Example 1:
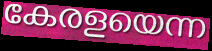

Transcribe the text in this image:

കേരളയെന്ന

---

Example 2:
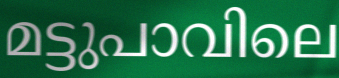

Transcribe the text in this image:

മട്ടുപാവിലെ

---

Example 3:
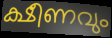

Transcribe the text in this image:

ക്ഷീണവും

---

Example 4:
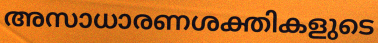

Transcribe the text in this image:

അസാധാരണശക്തികളുടെ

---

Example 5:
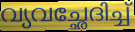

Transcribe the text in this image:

വ്യവച്ഛേദിച്ച്